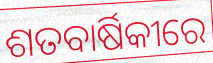
ଶତବାର୍ଷିକୀରେ